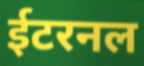
ईटरनल